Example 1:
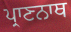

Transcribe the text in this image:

ਪ੍ਰਾਣਨਾਥ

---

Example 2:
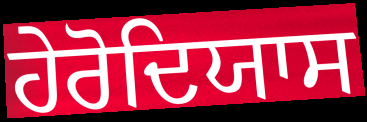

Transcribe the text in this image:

ਹੇਰੋਦਿਯਾਸ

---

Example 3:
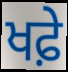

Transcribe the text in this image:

ਖਫ਼ੇ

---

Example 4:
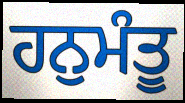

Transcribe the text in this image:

ਹਨੁਮੰਤੂ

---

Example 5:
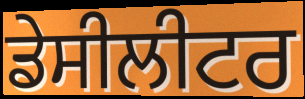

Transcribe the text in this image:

ਡੇਸੀਲੀਟਰ